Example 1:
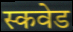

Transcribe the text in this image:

स्कवेड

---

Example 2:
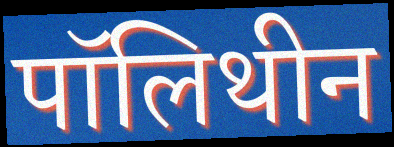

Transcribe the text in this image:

पॉलिथीन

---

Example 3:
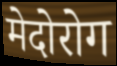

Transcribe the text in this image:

मेदोरोग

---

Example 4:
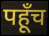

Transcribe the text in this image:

पहूँच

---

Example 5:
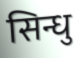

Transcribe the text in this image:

सिन्धु